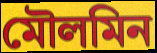
মৌলমিন